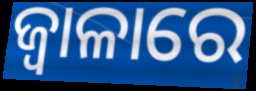
ଜ୍ଵାଳାରେ